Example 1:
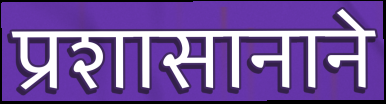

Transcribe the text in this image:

प्रशासानाने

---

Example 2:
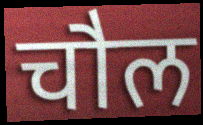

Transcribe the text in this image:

चौल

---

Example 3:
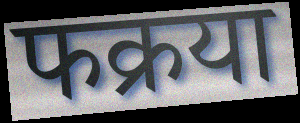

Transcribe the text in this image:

फक्रया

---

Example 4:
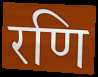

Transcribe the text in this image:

रणि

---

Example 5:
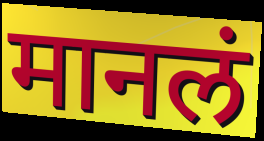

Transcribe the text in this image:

मानलं